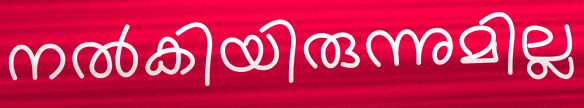
നൽകിയിരുന്നുമില്ല